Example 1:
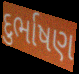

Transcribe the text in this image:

દુર્ભાષણ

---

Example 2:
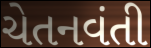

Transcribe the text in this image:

ચેતનવંતી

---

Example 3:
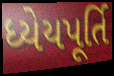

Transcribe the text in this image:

ધ્યેયપૂર્તિ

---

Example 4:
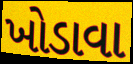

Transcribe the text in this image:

ખોડાવા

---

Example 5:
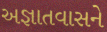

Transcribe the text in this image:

અજ્ઞાતવાસને